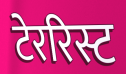
टेररिस्ट